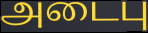
அடைபு